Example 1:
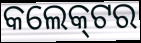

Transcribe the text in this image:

କଲେକ୍‌ଟର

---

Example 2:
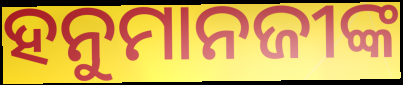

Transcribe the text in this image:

ହନୁମାନଜୀଙ୍କ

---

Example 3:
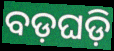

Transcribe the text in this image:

ବଡ଼ଘଡ଼ି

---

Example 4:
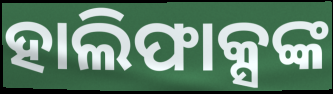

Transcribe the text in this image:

ହାଲିଫାକ୍ସଙ୍କ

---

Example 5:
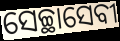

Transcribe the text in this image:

ସେଚ୍ଛାସେବୀ